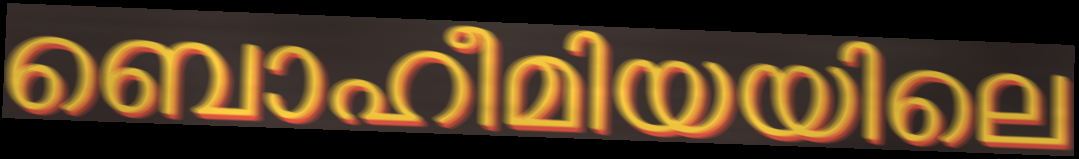
ബൊഹീമിയയിലെ